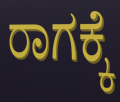
ರಾಗಕ್ಕೆ